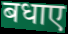
बधाए